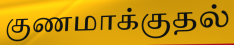
குணமாக்குதல்